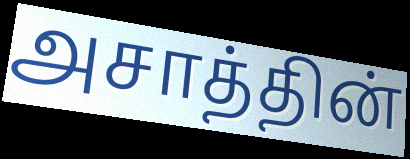
அசாத்தின்